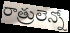
రాత్రులెన్నో